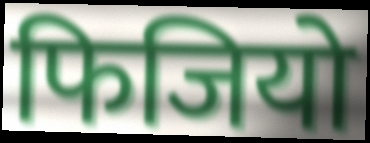
फिजियो